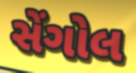
સેંગોલ